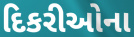
દિકરીઓના